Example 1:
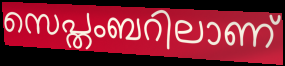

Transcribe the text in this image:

സെപ്തംബറിലാണ്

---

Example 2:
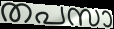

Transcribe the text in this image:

തപസാ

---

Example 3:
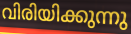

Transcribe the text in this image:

വിരിയിക്കുന്നു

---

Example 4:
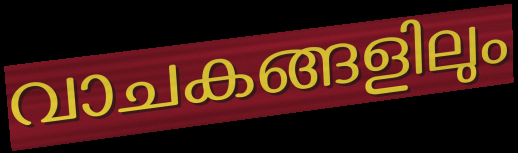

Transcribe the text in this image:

വാചകങ്ങളിലും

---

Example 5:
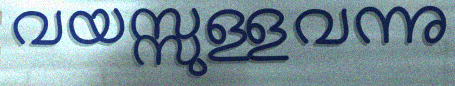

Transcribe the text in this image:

വയസ്സുള്ളവന്നു